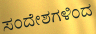
ಸಂದೇಶಗಳಿಂದ